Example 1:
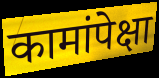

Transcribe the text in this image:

कामांपेक्षा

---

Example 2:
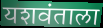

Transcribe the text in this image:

यशवंताला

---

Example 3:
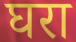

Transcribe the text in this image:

घरा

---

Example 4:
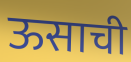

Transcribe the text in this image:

ऊसाची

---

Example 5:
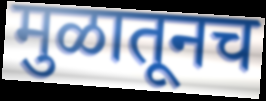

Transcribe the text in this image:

मुळातूनच